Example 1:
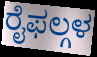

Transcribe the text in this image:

ರೈಫಲ್ಗಳ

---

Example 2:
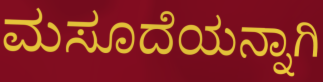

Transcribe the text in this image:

ಮಸೂದೆಯನ್ನಾಗಿ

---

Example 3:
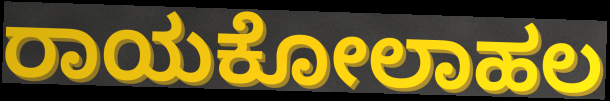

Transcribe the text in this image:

ರಾಯಕೋಲಾಹಲ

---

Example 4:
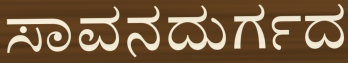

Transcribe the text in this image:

ಸಾವನದುರ್ಗದ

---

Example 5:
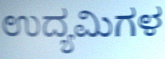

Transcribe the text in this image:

ಉದ್ಯಮಿಗಳ